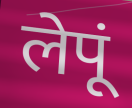
लेपूं